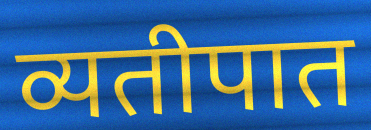
व्यतीपात